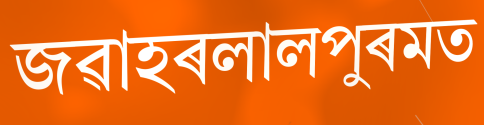
জৱাহৰলালপুৰমত